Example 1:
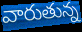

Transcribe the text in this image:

వారుతున్న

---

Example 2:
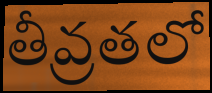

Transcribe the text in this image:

తీవ్రతలో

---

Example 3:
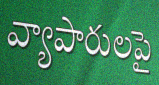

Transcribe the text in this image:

వ్యాపారులపై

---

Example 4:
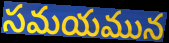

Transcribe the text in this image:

సమయమున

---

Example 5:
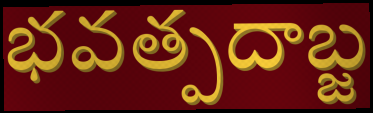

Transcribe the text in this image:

భవత్పదాబ్జ